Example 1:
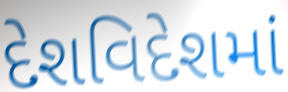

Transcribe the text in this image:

દેશવિદેશમાં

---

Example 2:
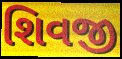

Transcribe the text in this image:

શિવજી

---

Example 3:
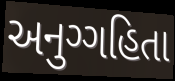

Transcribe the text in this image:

અનુગ્ગહિતા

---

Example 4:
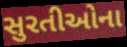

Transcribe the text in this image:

સુરતીઓના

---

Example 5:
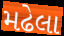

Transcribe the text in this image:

મઢેલા